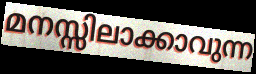
മനസ്സിലാക്കാവുന്ന